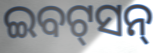
ଇବଟ୍‌ସନ୍